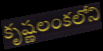
కృష్ణలంకలోని